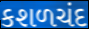
કશળચંદ